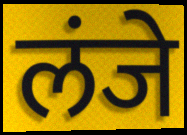
लंजे